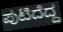
ಪುಟಿದೆದ್ದ